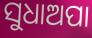
ସୁଧାଅପା